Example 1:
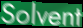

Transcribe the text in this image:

Solvent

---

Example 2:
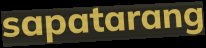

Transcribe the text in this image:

sapatarang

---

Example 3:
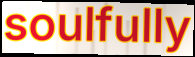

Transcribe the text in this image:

soulfully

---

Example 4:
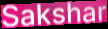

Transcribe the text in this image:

Sakshar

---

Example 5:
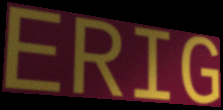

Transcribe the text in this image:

ERIG